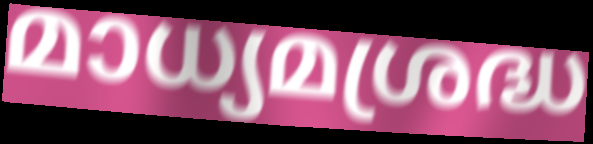
മാധ്യമശ്രദ്ധ